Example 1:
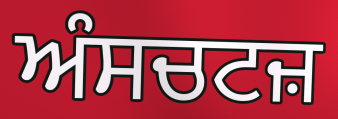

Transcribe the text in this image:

ਅੰਸਚਟਜ਼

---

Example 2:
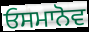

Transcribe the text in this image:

ਓਸਮਾਨੋਵ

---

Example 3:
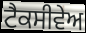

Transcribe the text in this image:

ਟੈਕਸੀਵੇਅ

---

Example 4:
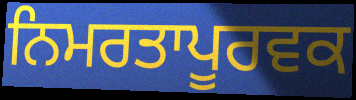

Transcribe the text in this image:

ਨਿਮਰਤਾਪੂਰਵਕ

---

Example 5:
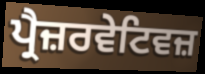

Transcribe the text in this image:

ਪ੍ਰੈਜ਼ਰਵੇਟਿਵਜ਼